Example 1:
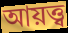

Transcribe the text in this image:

আয়ত্ত্ব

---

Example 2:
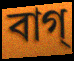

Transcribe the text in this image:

বাগ্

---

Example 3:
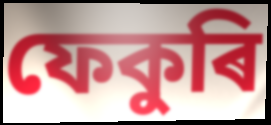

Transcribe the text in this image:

ফেকুৰি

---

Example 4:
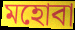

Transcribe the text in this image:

মহোবা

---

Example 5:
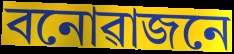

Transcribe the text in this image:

বনোৱাজনে